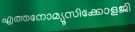
എത്തനോമ്യൂസിക്കോളജി